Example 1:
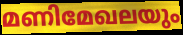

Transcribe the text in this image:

മണിമേഖലയും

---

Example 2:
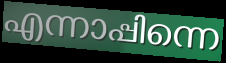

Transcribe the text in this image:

എന്നാപ്പിന്നെ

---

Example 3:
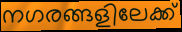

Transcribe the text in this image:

നഗരങ്ങളിലേക്ക്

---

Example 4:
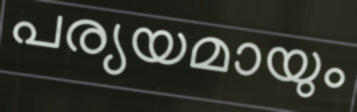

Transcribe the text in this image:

പര്യയമായും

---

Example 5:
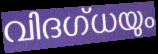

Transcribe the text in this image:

വിദഗ്ധയും